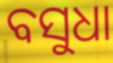
ବସୁଧା